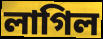
লাগিল